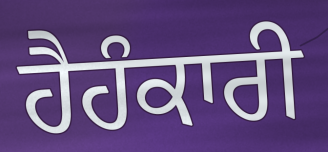
ਹੈਹੰਕਾਰੀ